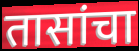
तासांचा